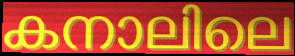
കനാലിലെ